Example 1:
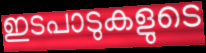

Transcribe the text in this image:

ഇടപാടുകളുടെ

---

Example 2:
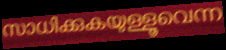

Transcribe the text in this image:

സാധിക്കുകയുള്ളൂവെന്ന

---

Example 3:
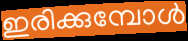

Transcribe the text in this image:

ഇരിക്കുമ്പോൾ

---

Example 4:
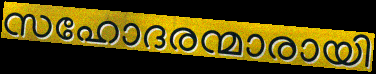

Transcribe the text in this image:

സഹോദരന്മാരായി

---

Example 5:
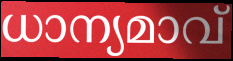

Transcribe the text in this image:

ധാന്യമാവ്